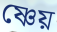
ষ্ণেয়